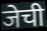
जेची